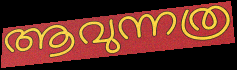
ആവുന്നത്ര